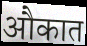
औकात